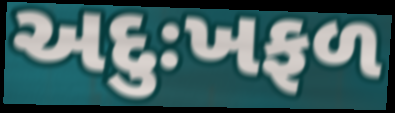
અદુઃખફળ